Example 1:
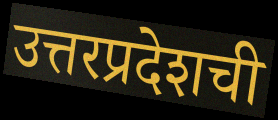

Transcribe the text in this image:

उत्तरप्रदेशची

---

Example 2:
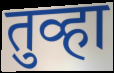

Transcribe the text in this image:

तुव्हा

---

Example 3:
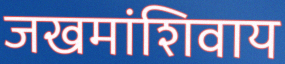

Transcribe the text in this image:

जखमांशिवाय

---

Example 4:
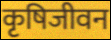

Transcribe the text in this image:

कृषिजीवन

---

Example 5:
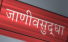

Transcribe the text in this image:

जाणीवसुद्धा